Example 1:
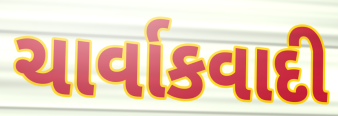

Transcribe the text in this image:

ચાર્વાકવાદી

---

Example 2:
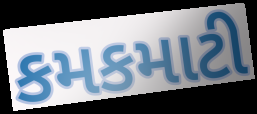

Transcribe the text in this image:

કમકમાટી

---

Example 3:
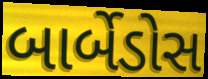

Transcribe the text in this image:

બાર્બેડોસ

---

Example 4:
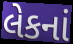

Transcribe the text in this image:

લેકનાં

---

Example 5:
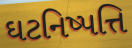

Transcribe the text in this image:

ઘટનિષ્પત્તિ